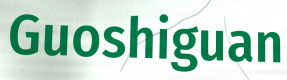
Guoshiguan